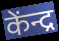
केंन्द्र